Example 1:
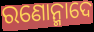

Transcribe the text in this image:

ରଣୋନ୍ମାଦେ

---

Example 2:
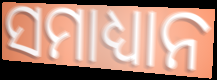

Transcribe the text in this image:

ସମାଧ୍ୟାନ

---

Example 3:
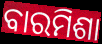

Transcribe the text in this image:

ବାରମିଶା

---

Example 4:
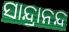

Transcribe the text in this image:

ସାନ୍ଦ୍ରାନନ୍ଦ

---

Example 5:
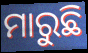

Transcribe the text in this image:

ମାରୁଛି